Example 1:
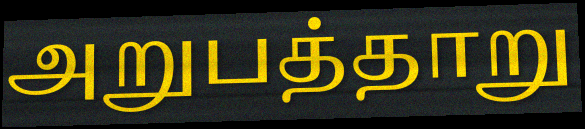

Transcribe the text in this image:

அறுபத்தாறு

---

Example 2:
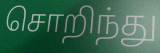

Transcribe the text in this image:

சொறிந்து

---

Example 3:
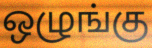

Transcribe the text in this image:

ஒழுங்கு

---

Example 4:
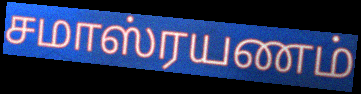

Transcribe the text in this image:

சமாஸ்ரயணம்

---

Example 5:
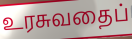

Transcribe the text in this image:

உரசுவதைப்